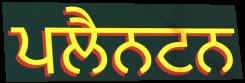
ਪਲੈਨਟਨ